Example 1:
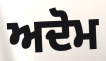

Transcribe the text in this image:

ਅਦੋਮ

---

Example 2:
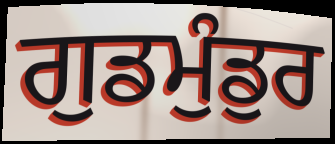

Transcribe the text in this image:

ਗੁਡਮੁੰਡੁਰ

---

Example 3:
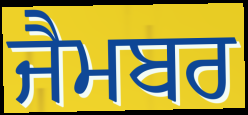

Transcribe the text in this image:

ਜੈਮਬਰ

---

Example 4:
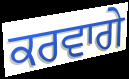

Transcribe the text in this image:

ਕਰਵਾਗੇ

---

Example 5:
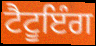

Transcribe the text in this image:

ਟੈਟੂਇੰਗ